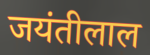
जयंतीलाल